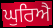
ਘੁਰਿਐ